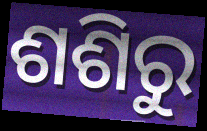
ଶଶିରୁ